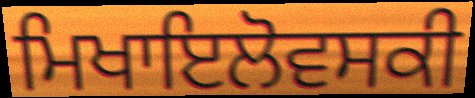
ਮਿਖਾਇਲੋਵਸਕੀ